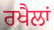
ਰਖੈਲਾਂ